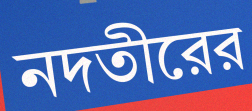
নদতীরের